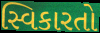
સ્વિકારતો